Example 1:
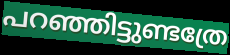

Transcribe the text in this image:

പറഞ്ഞിട്ടുണ്ടത്രേ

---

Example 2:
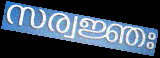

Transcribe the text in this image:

സര്വജ്ഞഃ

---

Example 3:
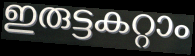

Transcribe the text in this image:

ഇരുട്ടകറ്റാം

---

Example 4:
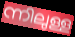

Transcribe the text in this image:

ന്നിലുള്ള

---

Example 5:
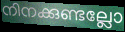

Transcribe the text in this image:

നിനക്കുണ്ടല്ലോ